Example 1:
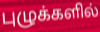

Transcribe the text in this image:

புழுக்களில்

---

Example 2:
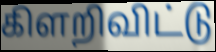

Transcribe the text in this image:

கிளறிவிட்டு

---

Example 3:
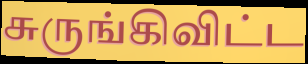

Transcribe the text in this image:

சுருங்கிவிட்ட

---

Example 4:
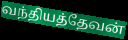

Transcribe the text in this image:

வந்தியத்தேவன்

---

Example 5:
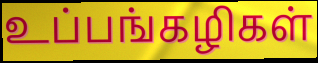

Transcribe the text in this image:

உப்பங்கழிகள்